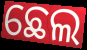
ଛେଲ